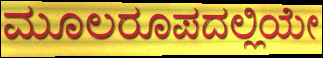
ಮೂಲರೂಪದಲ್ಲಿಯೇ